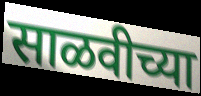
साळवीच्या